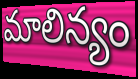
మాలిన్యం